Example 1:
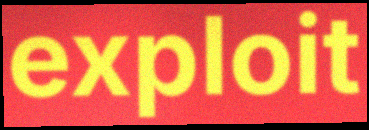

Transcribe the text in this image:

exploit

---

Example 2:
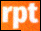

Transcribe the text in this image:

rpt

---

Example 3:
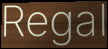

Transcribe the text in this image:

Regal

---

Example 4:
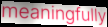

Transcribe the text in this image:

meaningfully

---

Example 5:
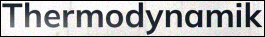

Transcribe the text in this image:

Thermodynamik